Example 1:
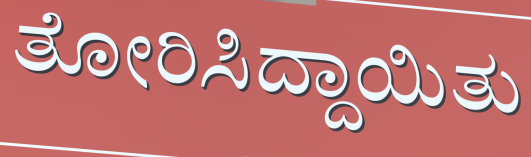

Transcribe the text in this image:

ತೋರಿಸಿದ್ದಾಯಿತು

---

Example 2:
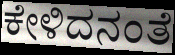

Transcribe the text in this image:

ಕೇಳಿದನಂತೆ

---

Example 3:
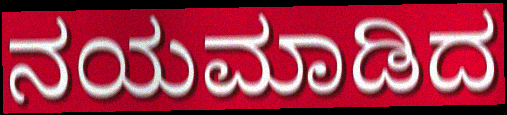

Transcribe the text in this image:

ನಯಮಾಡಿದ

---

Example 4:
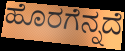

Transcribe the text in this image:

ಹೊರಗೆನ್ನದೆ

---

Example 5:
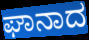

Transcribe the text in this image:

ಘಾನಾದ